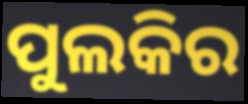
ପୁଲକିର